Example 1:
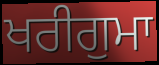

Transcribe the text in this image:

ਖਰੀਗੁਮਾ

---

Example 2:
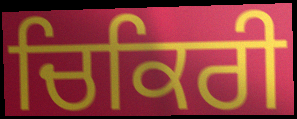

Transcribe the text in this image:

ਚਿਕਿਰੀ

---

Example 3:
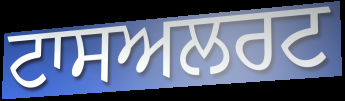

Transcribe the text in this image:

ਟਾਸਅਲਰਟ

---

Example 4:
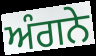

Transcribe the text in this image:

ਅੰਗਨੇ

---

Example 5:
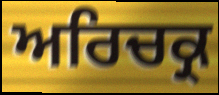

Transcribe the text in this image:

ਅਰਿਚਕ੍ਰ